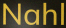
Nahl